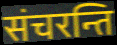
संचरन्ति